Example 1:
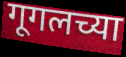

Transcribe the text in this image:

गूगलच्या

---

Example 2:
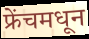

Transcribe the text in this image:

फ्रेंचमधून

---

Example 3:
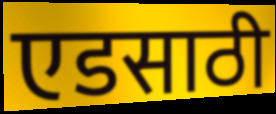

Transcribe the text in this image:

एडसाठी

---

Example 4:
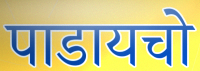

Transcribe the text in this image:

पाडायचो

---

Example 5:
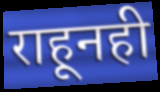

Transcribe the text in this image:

राहूनही